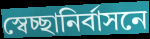
স্বেচ্ছানির্বাসনে